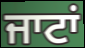
ਜਾਟਾਂ